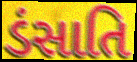
ડંસાતિ